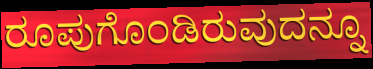
ರೂಪುಗೊಂಡಿರುವುದನ್ನೂ